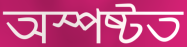
অস্পষ্টত